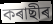
কৰাছীৰ